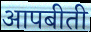
आपबीती